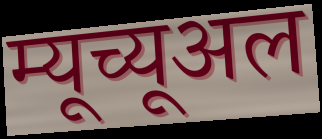
म्यूच्यूअल